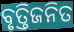
ବୃତ୍ତିଜନିତ